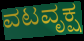
ವಟವೃಕ್ಷ